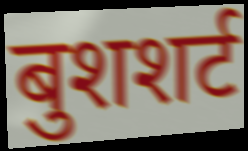
बुशशर्ट